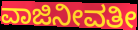
ವಾಜಿನೀವತೀ